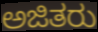
ಅಜಿತರು